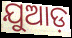
ଯୁଆଡ଼